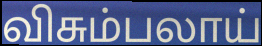
விசும்பலாய்